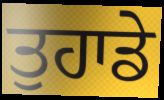
ਤੁਹਾਡੇ